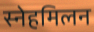
स्नेहमिलन